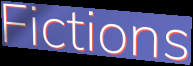
Fictions